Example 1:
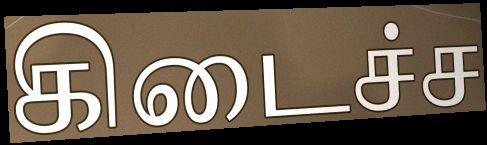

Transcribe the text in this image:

கிடைச்ச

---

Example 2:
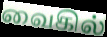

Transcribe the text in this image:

வைகில்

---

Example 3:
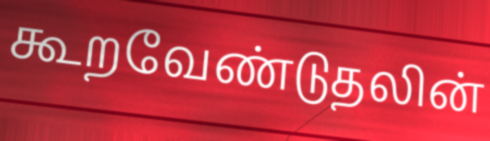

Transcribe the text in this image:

கூறவேண்டுதலின்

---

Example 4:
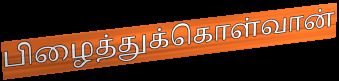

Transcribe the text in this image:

பிழைத்துக்கொள்வான்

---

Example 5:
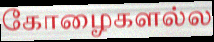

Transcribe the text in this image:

கோழைகளல்ல